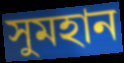
সুমহান